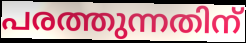
പരത്തുന്നതിന്